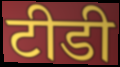
टीडी